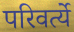
परिवर्त्ये